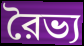
রৈভ্য